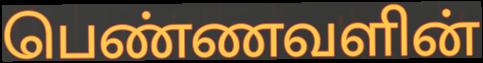
பெண்ணவளின்